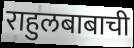
राहुलबाबाची